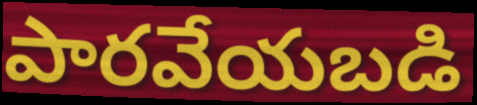
పారవేయబడి